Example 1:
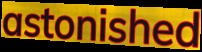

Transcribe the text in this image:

astonished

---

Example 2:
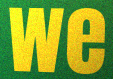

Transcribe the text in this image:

we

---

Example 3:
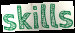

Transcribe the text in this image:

skills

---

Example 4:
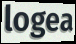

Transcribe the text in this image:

logea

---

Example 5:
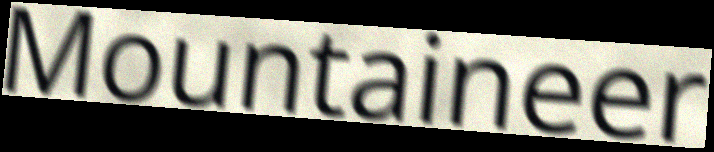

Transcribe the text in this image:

Mountaineer